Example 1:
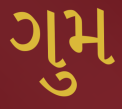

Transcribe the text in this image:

ગુમ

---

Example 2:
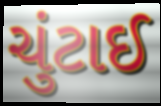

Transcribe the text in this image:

ચુંટાઈ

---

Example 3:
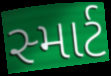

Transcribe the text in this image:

સ્માર્ટ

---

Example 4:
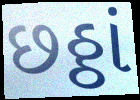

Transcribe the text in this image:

છઠ્ઠાં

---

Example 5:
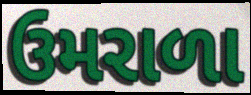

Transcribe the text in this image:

ઉમરાળા